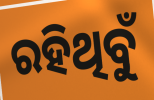
ରହିଥିବୁଁ